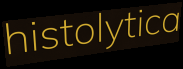
histolytica